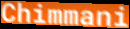
Chimmani